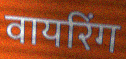
वायरिंग